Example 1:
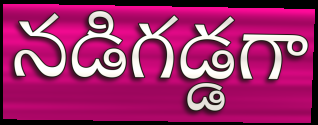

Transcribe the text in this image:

నడిగడ్డగా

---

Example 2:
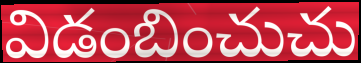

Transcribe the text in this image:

విడంబించుచు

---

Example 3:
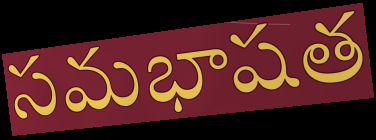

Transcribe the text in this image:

సమభాషత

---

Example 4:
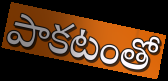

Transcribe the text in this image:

పాకటంతో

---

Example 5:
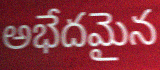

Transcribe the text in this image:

అభేదమైన